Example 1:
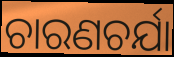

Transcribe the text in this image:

ଚାରଣଚର୍ଯା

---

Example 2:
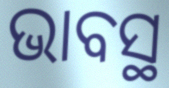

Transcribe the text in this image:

ଭାବସ୍ଥ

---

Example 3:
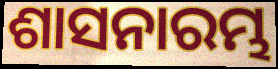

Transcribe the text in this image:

ଶାସନାରମ୍ଭ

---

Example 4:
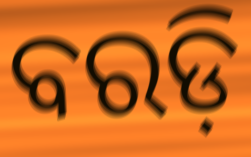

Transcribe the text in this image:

ବରଡ଼ି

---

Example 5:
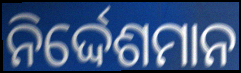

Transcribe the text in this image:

ନିର୍ଦ୍ଦେଶମାନ